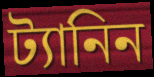
ট্যানিন